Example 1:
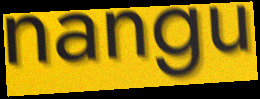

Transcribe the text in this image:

nangu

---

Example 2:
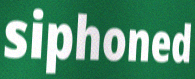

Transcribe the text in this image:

siphoned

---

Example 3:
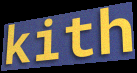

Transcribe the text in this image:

kith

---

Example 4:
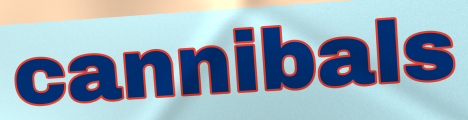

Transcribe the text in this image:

cannibals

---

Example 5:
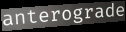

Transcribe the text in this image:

anterograde